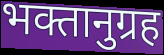
भक्तानुग्रह